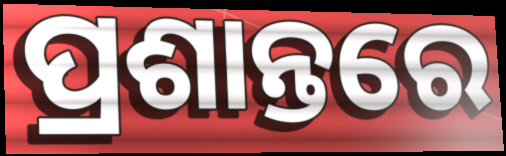
ପ୍ରଶାନ୍ତରେ